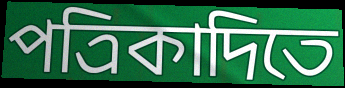
পত্রিকাদিতে